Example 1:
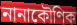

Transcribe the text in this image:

নানাকৌণিক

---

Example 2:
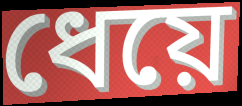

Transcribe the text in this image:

ধেয়ে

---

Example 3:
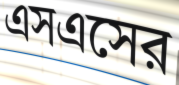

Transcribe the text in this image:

এসএসের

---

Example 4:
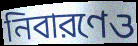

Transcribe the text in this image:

নিবারণেও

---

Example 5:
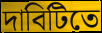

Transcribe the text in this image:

দাবিটিতে